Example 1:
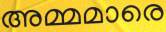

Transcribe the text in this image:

അമ്മമാരെ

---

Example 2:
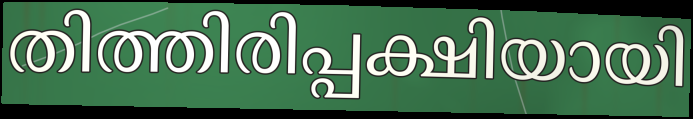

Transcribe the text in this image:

തിത്തിരിപ്പക്ഷിയായി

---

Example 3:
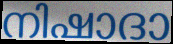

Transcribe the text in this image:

നിഷാദാ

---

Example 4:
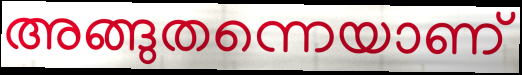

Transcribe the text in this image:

അങ്ങുതന്നെയാണ്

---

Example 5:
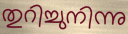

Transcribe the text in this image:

തുറിച്ചുനിന്നു